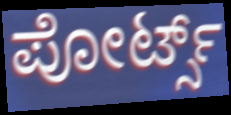
ಪೋರ್ಟ್ಸ್